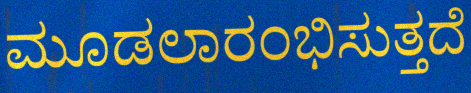
ಮೂಡಲಾರಂಭಿಸುತ್ತದೆ